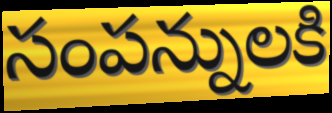
సంపన్నులకి